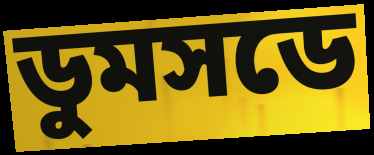
ডুমসডে